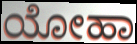
ಯೋಹಾ